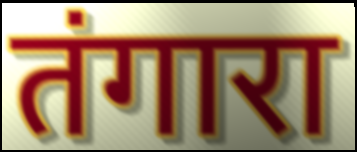
तंगारा